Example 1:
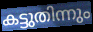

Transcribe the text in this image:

കട്ടുതിന്നും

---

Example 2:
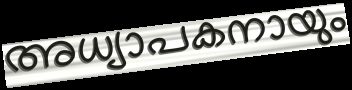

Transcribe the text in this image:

അധ്യാപകനായും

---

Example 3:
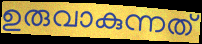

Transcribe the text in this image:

ഉരുവാകുന്നത്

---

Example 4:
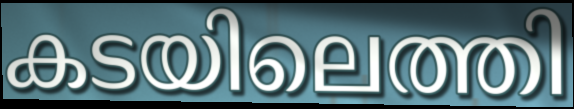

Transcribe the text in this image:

കടയിലെത്തി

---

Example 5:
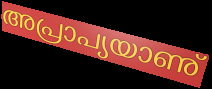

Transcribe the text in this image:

അപ്രാപ്യയാണു്